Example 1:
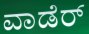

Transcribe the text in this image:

ವಾಡೆರ್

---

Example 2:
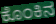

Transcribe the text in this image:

ಕೊಂಕಿನ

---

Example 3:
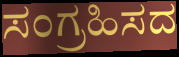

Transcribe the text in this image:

ಸಂಗ್ರಹಿಸದ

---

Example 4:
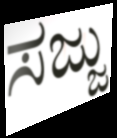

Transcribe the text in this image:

ಸಜ್ಜು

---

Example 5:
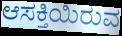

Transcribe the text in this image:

ಆಸಕ್ತಿಯಿರುವ